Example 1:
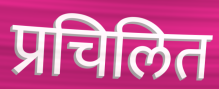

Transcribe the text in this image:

प्रचिलित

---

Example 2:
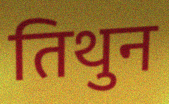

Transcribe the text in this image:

तिथुन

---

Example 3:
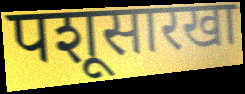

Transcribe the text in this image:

पशूसारखा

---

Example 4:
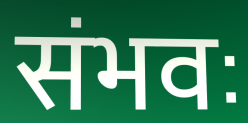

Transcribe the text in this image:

संभवः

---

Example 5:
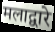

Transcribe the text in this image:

मलाद्वारे